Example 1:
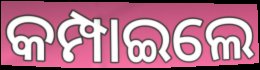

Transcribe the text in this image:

କମ୍ପାଇଲେ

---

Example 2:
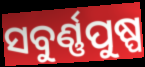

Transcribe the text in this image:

ସବୁର୍ଣ୍ଣପୁଷ୍ପ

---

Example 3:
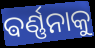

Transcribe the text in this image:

ଵର୍ଣ୍ଣନାକୁ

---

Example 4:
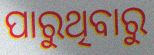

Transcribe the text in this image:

ପାରୁଥିବାରୁ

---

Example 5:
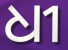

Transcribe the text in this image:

ଧୀ